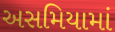
અસમિયામાં